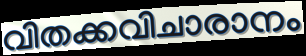
വിതക്കവിചാരാനം